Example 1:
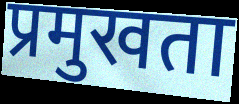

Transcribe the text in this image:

प्रमुखता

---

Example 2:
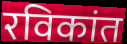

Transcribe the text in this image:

रविकांत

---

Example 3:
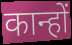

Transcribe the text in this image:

कान्हों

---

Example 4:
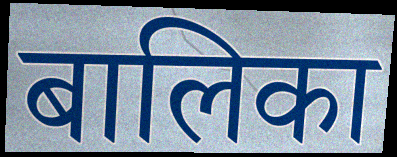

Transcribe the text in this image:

बालिका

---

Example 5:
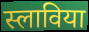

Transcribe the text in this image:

स्लाविया